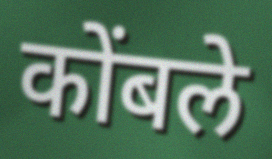
कोंबले